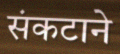
संकटाने